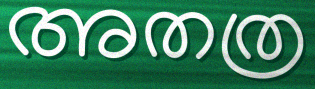
അതത്ര